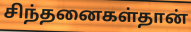
சிந்தனைகள்தான்